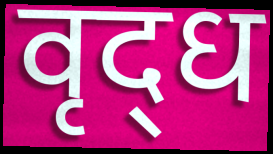
वृद्ध